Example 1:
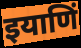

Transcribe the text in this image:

इयाणिं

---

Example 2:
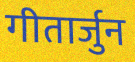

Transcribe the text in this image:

गीतार्जुन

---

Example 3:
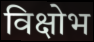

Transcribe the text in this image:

विक्षोभ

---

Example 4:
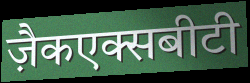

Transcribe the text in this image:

ज़ैकएक्सबीटी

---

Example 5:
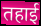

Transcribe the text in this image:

तहाई